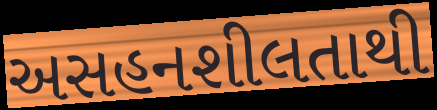
અસહનશીલતાથી